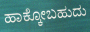
ಹಾಕ್ಕೋಬಹುದು